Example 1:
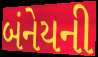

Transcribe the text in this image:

બંનેયની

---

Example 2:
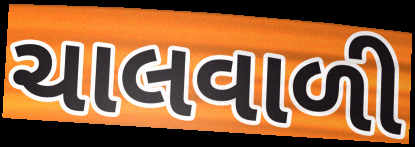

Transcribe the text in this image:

ચાલવાળી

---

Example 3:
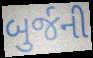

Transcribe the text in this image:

બુર્જની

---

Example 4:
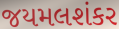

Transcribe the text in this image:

જયમલશંકર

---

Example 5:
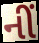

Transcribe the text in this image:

નીં